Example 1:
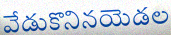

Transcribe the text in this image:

వేడుకొనినయెడల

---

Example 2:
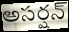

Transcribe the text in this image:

అసర్షన్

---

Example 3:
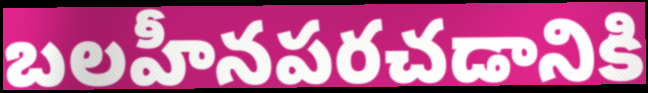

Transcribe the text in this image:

బలహీనపరచడానికి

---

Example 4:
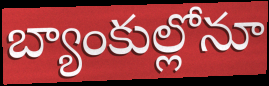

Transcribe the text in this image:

బ్యాంకుల్లోనూ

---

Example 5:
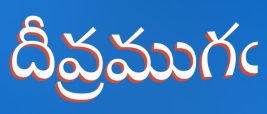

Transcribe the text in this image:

దీవ్రముగఁ